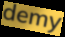
demy